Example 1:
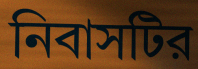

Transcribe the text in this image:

নিবাসটির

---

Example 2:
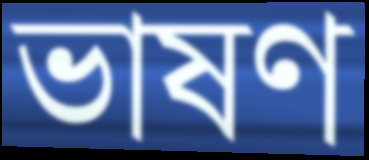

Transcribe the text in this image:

ভাষণ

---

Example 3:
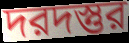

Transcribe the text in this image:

দরদস্তুর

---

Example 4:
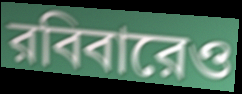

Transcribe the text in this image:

রবিবারেও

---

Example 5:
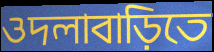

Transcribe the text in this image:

ওদলাবাড়িতে